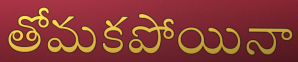
తోమకపోయినా